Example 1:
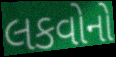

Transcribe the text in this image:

લકવોનો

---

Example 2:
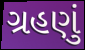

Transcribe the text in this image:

ગ્રહણું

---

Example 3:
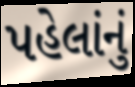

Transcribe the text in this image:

પહેલાંનું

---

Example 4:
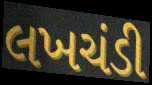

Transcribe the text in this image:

લખચંડી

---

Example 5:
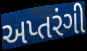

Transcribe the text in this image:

અપ્તરંગી